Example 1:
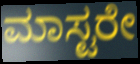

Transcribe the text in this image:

ಮಾಸ್ಟರೇ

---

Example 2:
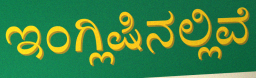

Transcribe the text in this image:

ಇಂಗ್ಲಿಷಿನಲ್ಲಿವೆ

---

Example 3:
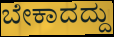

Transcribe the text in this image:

ಬೇಕಾದದ್ದು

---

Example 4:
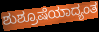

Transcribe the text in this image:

ಶುಶ್ರೂಷೆಯಾದ್ಯಂತ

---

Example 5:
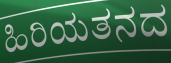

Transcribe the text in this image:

ಹಿರಿಯತನದ